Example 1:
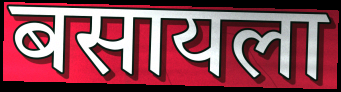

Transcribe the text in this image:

बसायला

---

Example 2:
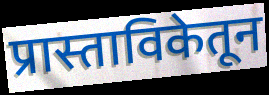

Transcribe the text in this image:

प्रास्ताविकेतून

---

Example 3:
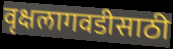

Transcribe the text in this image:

वृक्षलागवडीसाठी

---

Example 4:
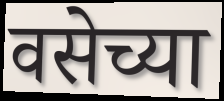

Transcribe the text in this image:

वसेच्या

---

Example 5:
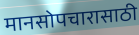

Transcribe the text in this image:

मानसोपचारासाठी